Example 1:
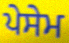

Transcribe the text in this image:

ਪੇਸੇਮ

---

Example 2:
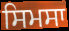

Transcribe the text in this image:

ਸਿਮਸਾ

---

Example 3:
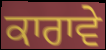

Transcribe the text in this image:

ਕਾਰਾਵੇ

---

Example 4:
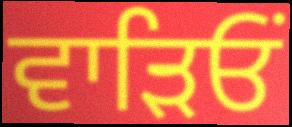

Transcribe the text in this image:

ਵਾੜਿਓਂ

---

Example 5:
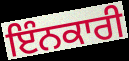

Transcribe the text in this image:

ਇੰਨਕਾਰੀ